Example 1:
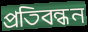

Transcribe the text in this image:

প্ৰতিবন্ধন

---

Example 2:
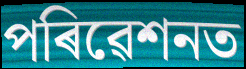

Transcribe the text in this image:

পৰিৱেশনত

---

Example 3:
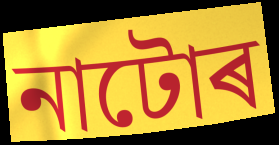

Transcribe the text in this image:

নাটোৰ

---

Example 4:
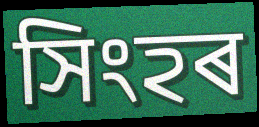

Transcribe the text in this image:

সিংহৰ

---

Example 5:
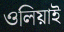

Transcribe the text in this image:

ওলিয়াই